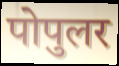
पोपुलर